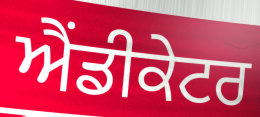
ਐਂਡੀਕੇਟਰ